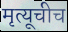
मृत्यूचीच